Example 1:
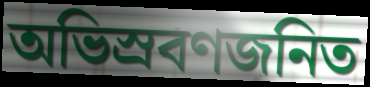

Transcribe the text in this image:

অভিস্রবণজনিত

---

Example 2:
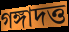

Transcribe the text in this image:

গঙ্গাদত্ত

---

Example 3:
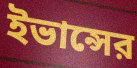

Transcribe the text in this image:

ইভান্সের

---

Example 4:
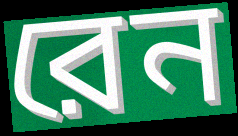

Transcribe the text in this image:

রেন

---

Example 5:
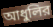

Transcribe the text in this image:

আধুলির